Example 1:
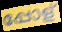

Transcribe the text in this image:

പ്പോള്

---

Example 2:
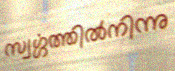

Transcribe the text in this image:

സ്വൎഗ്ഗത്തിൽനിന്നു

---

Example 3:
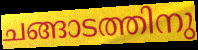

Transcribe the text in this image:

ചങ്ങാടത്തിനു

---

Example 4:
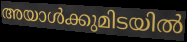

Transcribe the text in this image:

അയാൾക്കുമിടയിൽ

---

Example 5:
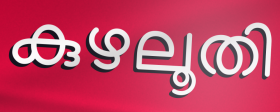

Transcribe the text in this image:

കുഴലൂതി